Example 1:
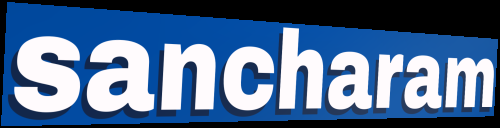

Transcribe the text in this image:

sancharam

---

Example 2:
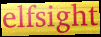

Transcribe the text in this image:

elfsight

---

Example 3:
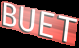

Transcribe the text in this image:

BUET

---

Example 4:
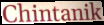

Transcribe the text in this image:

Chintanik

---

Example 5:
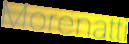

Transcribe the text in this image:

Morenatti